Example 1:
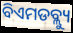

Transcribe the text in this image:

ବିଏମଡବ୍ଲ୍ୟୁ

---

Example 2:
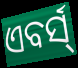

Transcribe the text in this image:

ଏବର୍ସ୍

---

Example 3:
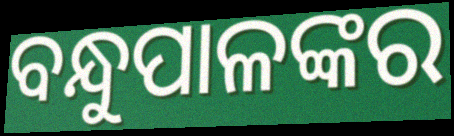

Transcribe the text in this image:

ବନ୍ଧୁପାଳଙ୍କର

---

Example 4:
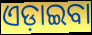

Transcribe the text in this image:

ଏଡ଼ାଇବା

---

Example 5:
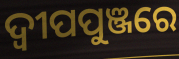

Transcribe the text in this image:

ଦ୍ବୀପପୁଞ୍ଜରେ